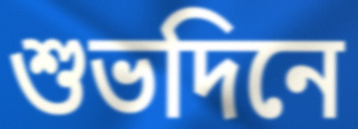
শুভদিনে